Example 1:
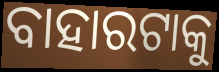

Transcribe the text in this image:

ବାହାରଟାକୁ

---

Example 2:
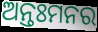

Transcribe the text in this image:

ଅନ୍ତଃମନର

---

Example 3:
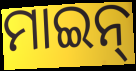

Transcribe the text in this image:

ମାଇନ୍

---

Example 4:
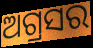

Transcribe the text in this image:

ଅଗ୍ରସର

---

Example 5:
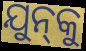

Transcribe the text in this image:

ଯୁନ୍‍କୁ